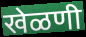
खेळणी